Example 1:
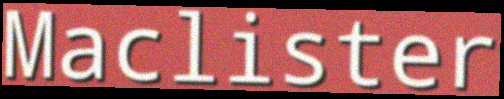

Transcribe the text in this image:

Maclister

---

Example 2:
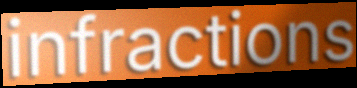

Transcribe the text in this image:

infractions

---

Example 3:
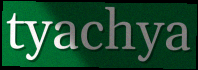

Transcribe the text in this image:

tyachya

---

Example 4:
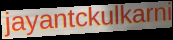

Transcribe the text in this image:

jayantckulkarni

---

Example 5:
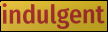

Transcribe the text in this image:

indulgent